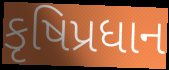
કૃષિપ્રધાન